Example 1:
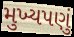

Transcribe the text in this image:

મુખ્યપણું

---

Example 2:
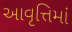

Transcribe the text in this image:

આવૃત્તિમાં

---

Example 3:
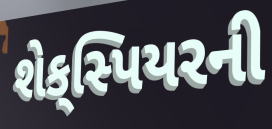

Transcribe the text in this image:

શેક્‌સ્પિયરની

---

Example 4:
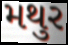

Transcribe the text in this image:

મથુર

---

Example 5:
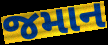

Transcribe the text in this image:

જમાન